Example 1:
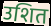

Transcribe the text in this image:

उशित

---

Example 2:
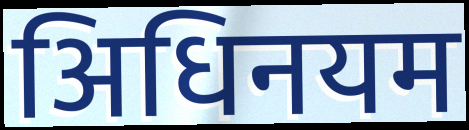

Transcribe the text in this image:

अिधिनयम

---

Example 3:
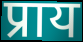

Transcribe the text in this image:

प्राय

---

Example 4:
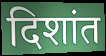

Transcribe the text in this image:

दिशांत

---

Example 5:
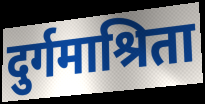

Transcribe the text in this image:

दुर्गमाश्रिता